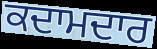
ਕਦਾਮਦਾਰ